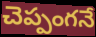
చెప్పంగనే